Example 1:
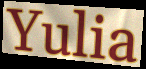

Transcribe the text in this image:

Yulia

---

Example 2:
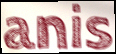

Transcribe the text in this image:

anis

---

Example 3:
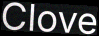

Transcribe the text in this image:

Clove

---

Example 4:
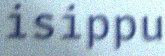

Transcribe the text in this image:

isippu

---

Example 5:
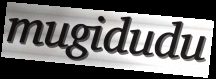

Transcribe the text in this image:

mugidudu